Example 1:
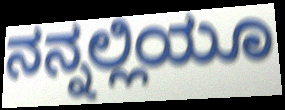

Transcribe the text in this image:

ನನ್ನಲ್ಲಿಯೂ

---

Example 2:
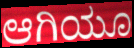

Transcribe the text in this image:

ಆಗಿಯೂ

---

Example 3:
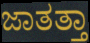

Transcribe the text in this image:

ಜಾತತ್ತಾ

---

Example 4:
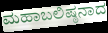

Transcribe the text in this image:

ಮಹಾಬಲಿಷ್ಠನಾದ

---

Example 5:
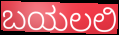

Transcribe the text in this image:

ಬಯಲಲಿ